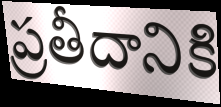
ప్రతీదానికి